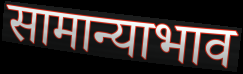
सामान्याभाव